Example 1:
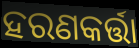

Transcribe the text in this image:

ହରଣକର୍ତ୍ତା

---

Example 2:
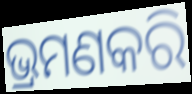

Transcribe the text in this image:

ଭ୍ରମଣକରି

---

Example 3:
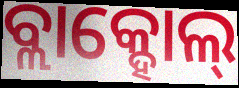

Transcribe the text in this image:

ବ୍ଲାକ୍ହୋଲ୍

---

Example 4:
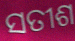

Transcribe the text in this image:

ସତୀଶ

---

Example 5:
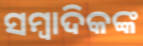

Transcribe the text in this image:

ସମ୍ୱାଦିକଙ୍କ